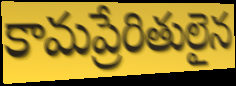
కామప్రేరితులైన